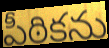
పీఠికను